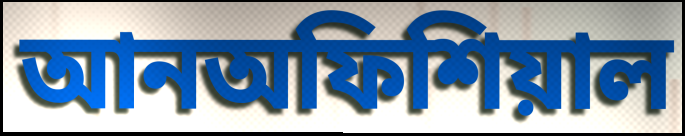
আনঅফিশিয়াল